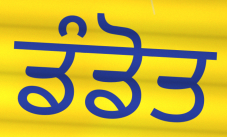
ਡੰਡੋਤ